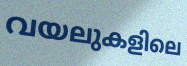
വയലുകളിലെ